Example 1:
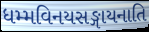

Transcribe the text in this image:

ધમ્મવિનયસઙ્ગાયનાતિ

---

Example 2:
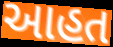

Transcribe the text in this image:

આહત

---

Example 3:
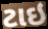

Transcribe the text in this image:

ટાઇ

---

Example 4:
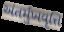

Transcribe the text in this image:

અંતર્મુખવૃત્તિ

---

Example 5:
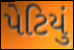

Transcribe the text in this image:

પેટિયું